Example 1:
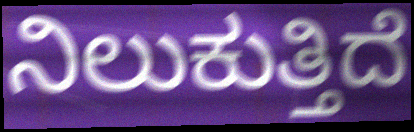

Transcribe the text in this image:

ನಿಲುಕುತ್ತಿದೆ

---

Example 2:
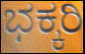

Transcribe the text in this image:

ಭಕ್ಕರಿ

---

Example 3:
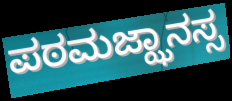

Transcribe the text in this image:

ಪಠಮಜ್ಝಾನಸ್ಸ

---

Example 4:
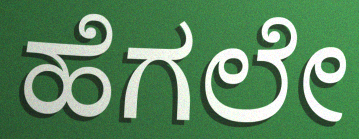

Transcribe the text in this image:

ಹೆಗಲೇ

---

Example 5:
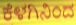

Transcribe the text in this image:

ಕೆಳಗಿನಿಂದ